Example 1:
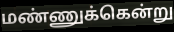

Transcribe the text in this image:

மண்ணுக்கென்று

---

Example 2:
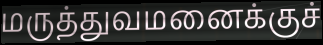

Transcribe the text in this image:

மருத்துவமனைக்குச்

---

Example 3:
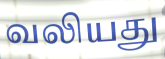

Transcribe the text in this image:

வலியது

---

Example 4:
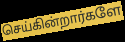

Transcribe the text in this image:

செய்கின்றார்களே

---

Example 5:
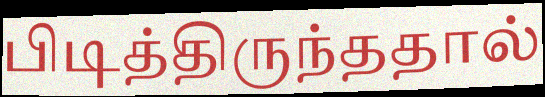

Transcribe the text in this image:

பிடித்திருந்ததால்